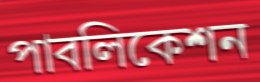
পাবলিকেশন